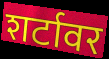
शर्टावर